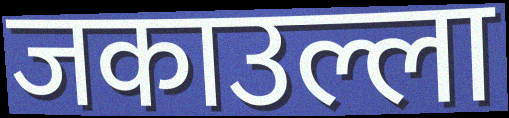
जकाउल्ला